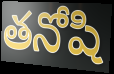
తనోషి